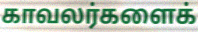
காவலர்களைக்